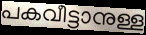
പകവീട്ടാനുള്ള